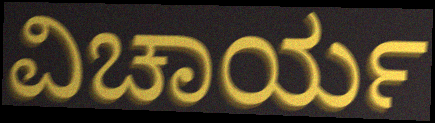
ವಿಚಾರ್ಯ